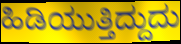
ಹಿಡಿಯುತ್ತಿದ್ದುದು